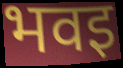
भवइ